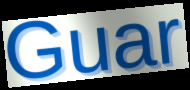
Guar